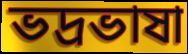
ভদ্রভাষা